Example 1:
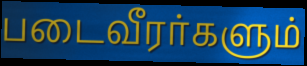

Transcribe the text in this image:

படைவீரர்களும்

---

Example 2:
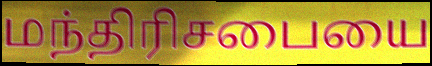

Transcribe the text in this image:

மந்திரிசபையை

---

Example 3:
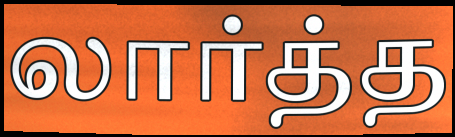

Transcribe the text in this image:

லார்த்த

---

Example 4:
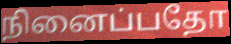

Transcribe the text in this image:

நினைப்பதோ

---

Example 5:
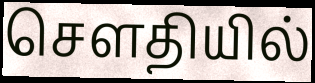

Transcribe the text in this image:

செளதியில்